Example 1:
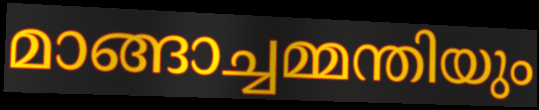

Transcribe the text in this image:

മാങ്ങാച്ചമ്മന്തിയും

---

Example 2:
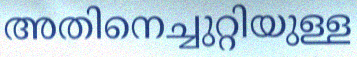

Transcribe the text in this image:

അതിനെച്ചുറ്റിയുള്ള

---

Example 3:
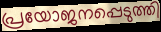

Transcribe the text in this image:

പ്രയോജനപ്പെടുത്തി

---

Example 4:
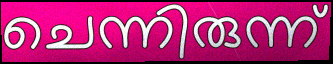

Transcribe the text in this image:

ചെന്നിരുന്ന്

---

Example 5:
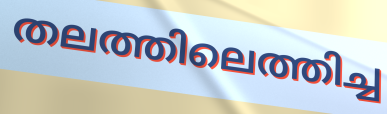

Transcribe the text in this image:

തലത്തിലെത്തിച്ച